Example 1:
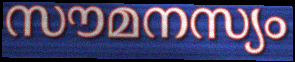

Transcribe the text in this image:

സൗമനസ്യം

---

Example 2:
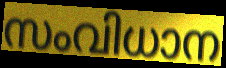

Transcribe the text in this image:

സംവിധാന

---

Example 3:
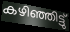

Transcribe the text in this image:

കഴിഞ്ഞിട്ടു്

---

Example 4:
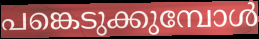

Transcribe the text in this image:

പങ്കെടുക്കുമ്പോൾ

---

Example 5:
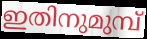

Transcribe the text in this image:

ഇതിനുമുമ്പ്